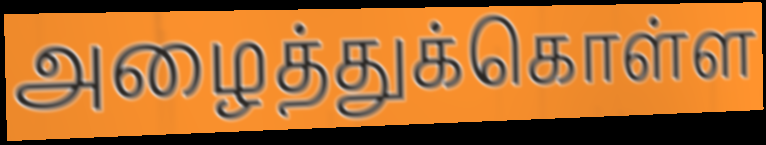
அழைத்துக்கொள்ள